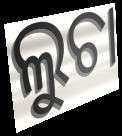
ଲୁଚା